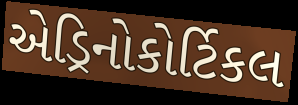
એડ્રિનોકોર્ટિકલ